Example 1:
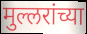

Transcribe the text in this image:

मुल्लरांच्या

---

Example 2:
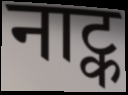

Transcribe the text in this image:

नाट्क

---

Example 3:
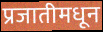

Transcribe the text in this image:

प्रजातीमधून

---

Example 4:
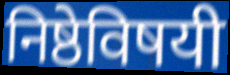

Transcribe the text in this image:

निष्ठेविषयी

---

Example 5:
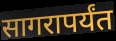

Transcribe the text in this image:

सागरापर्यंत